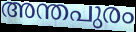
അന്തപുരം